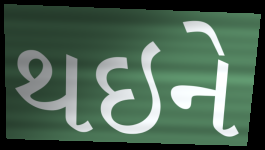
થઇને